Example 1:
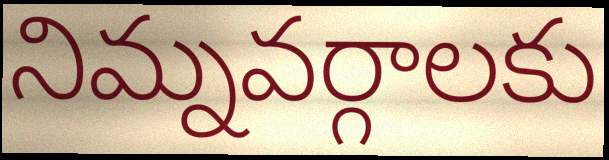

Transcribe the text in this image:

నిమ్నవర్గాలకు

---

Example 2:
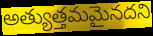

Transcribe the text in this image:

అత్యుత్తమమైనదని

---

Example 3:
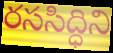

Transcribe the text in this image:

రససిద్ధిని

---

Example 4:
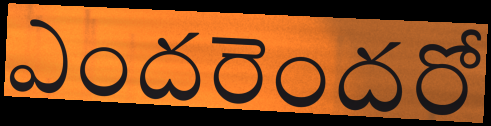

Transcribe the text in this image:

ఎందరెందరో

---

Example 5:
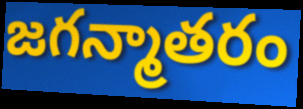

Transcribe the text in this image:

జగన్మాతరం